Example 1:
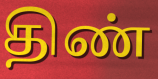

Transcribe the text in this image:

திண்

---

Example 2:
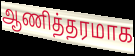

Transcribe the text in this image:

ஆணித்தரமாக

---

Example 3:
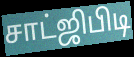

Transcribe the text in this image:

சாட்ஜிபிடி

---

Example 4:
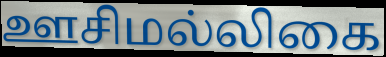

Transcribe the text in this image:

ஊசிமல்லிகை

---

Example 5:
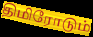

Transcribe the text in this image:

திமிரோடும்